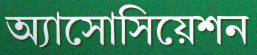
অ্যাসোসিয়েশন